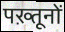
पख़्तूनों